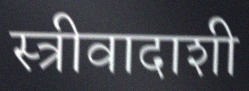
स्त्रीवादाशी